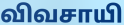
விவசாயி